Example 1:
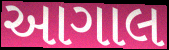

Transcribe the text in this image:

આગાલ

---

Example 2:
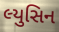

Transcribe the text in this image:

લ્યુસિન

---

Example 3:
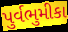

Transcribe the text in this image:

પુર્વભુમીકા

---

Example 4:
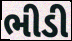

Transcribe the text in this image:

ભીડી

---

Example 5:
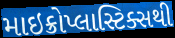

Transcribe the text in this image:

માઇક્રોપ્લાસ્ટિક્સથી